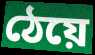
ঠেয়ে